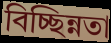
বিচ্ছিন্নতা